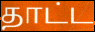
தாட்ட